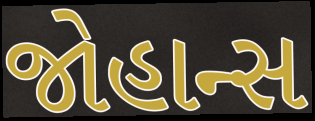
જોહાન્સ